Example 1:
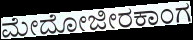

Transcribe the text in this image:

ಮೇದೋಜೀರಕಾಂಗ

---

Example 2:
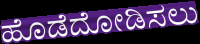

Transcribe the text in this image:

ಹೊಡೆದೋಡಿಸಲು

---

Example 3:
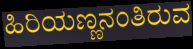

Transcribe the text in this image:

ಹಿರಿಯಣ್ಣನಂತಿರುವ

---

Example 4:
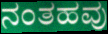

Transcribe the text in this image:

ನಂತಹವು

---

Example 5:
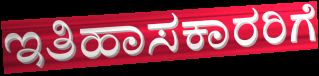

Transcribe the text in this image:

ಇತಿಹಾಸಕಾರರಿಗೆ